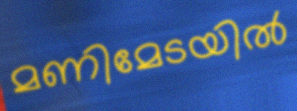
മണിമേടയിൽ